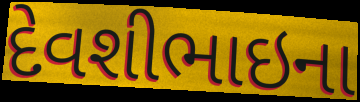
દેવશીભાઇના